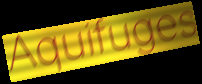
Aquifuges